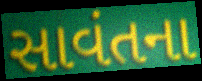
સાવંતના